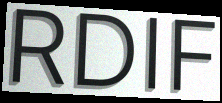
RDIF